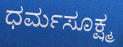
ಧರ್ಮಸೂಕ್ಷ್ಮ